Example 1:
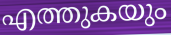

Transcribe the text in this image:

എത്തുകയും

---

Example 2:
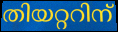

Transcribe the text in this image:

തിയറ്ററിന്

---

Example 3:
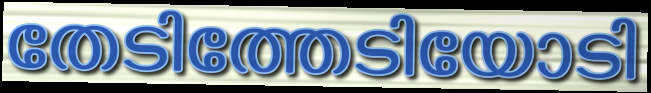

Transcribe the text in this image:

തേടിത്തേടിയോടി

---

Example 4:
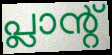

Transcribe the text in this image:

പ്ലാന്റ്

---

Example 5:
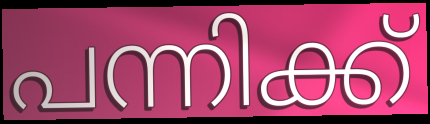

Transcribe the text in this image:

പന്നിക്ക്